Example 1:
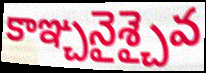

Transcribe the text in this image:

కాఞ్చనైశ్చైవ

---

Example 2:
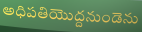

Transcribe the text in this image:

అధిపతియొద్దనుండెను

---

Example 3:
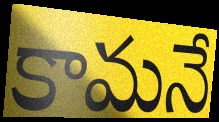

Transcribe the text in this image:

కామనే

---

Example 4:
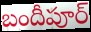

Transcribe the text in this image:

బందీపూర్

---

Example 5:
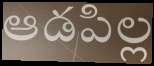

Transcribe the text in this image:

ఆడపిల్ల